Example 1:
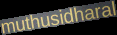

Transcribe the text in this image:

muthusidharal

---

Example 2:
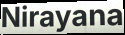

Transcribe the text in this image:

Nirayana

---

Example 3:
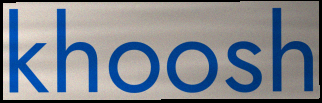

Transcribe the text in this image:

khoosh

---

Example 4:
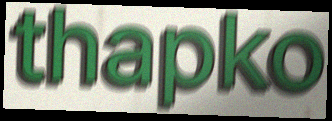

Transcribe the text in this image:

thapko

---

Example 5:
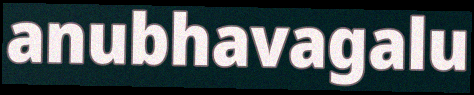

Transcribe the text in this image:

anubhavagalu